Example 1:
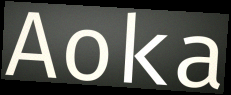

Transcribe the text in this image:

Aoka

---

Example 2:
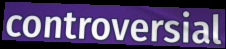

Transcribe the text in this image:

controversial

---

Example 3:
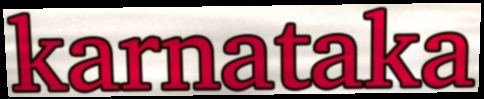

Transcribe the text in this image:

karnataka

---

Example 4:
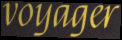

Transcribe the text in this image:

voyager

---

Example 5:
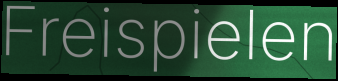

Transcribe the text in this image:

Freispielen